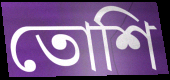
তোশি